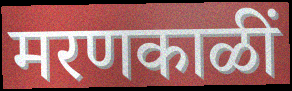
मरणकाळीं